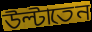
উল্টাতেন